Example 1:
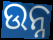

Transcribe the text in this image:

ଉନ୍ନ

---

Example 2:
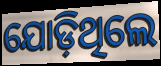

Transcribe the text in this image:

ଯୋଡ଼ିଥିଲେ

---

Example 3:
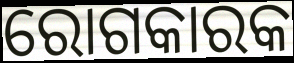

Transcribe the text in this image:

ରୋଗକାରକ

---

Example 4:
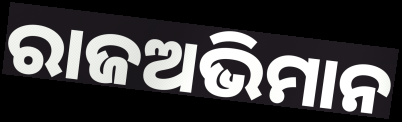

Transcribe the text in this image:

ରାଜଅଭିମାନ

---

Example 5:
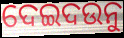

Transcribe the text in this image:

ଦେଇଦଉନୁ